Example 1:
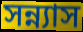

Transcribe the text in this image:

সন্ন্যাস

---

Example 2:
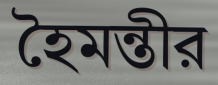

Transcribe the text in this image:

হৈমন্তীর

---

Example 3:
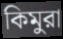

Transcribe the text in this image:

কিমুরা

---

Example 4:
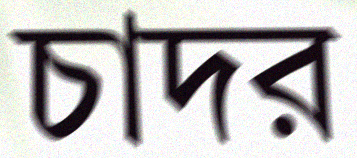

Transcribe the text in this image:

চাদর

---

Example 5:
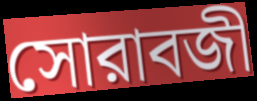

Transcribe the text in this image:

সোরাবজী